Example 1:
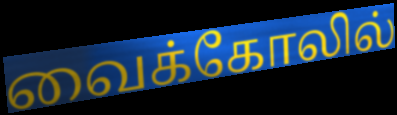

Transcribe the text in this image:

வைக்கோலில்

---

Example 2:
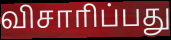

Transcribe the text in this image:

விசாரிப்பது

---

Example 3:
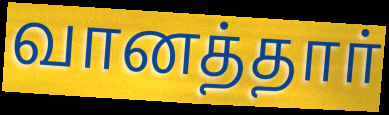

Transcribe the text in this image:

வானத்தார்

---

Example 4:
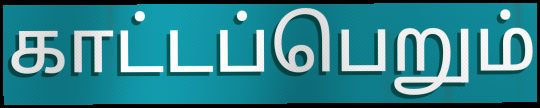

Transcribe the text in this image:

காட்டப்பெறும்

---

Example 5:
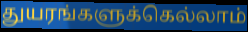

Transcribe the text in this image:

துயரங்களுக்கெல்லாம்